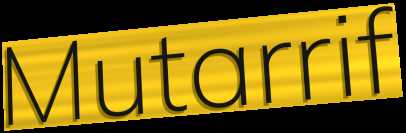
Mutarrif